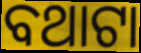
ବଥାଟା